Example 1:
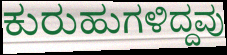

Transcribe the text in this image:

ಕುರುಹುಗಳಿದ್ದವು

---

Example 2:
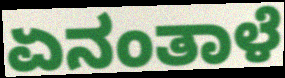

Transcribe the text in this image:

ಏನಂತಾಳೆ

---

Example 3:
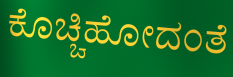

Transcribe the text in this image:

ಕೊಚ್ಚಿಹೋದಂತೆ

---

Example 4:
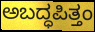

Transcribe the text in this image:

ಅಬದ್ಧಪಿತ್ತಂ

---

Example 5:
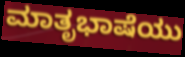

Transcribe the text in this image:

ಮಾತೃಭಾಷೆಯು